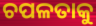
ଚପଳତାକୁ